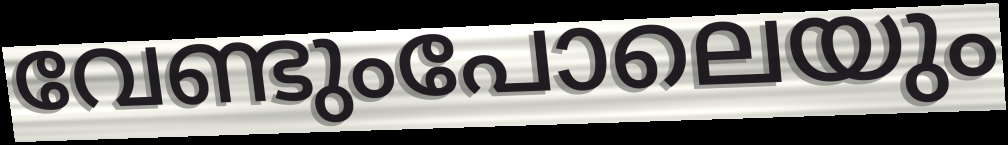
വേണ്ടുംപോലെയും